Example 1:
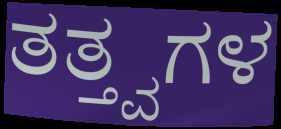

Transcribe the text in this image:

ತತ್ತ್ವಗಳ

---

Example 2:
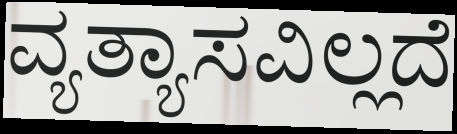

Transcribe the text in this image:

ವ್ಯತ್ಯಾಸವಿಲ್ಲದೆ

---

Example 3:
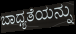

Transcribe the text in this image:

ಬಾಧ್ಯತೆಯನ್ನು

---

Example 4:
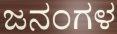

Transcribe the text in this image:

ಜನಂಗಳ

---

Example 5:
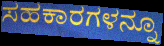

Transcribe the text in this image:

ಸಹಕಾರಗಳನ್ನೂ